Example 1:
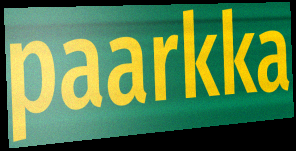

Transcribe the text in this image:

paarkka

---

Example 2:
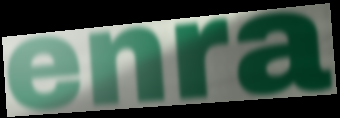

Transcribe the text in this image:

enra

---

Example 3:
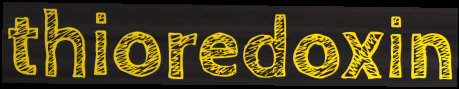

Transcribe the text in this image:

thioredoxin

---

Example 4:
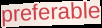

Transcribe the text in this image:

preferable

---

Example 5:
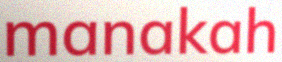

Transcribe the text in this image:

manakah